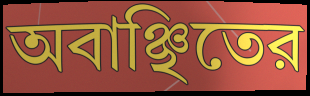
অবাঞ্ছিতের